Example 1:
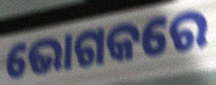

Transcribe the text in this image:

ଭୋଗକରେ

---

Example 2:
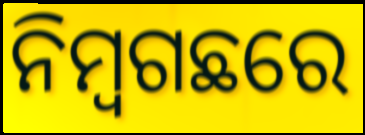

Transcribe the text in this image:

ନିମ୍ବଗଛରେ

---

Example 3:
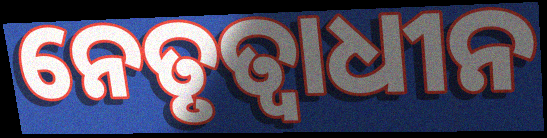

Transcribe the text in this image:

ନେତୃତ୍ୱାଧୀନ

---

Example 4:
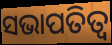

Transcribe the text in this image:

ସଭାପତିତ୍ବ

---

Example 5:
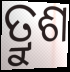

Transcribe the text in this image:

ତ୍ରୁଶ